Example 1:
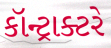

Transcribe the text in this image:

કૉન્ટ્રાક્ટરે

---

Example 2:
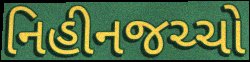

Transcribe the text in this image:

નિહીનજચ્ચો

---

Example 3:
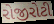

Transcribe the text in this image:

રોજીરોટી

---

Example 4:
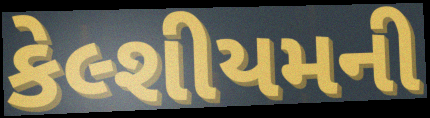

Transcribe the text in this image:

કેલ્શીયમની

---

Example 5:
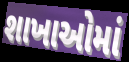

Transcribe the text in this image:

શાખાઓમાં